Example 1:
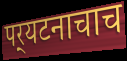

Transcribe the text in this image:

पर्यटनाचाच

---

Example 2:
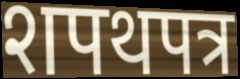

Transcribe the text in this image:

शपथपत्र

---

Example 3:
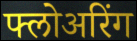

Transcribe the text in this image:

फ्लोअरिंग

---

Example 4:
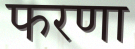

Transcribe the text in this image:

फरणा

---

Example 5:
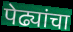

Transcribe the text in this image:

पेढ्यांचा